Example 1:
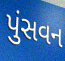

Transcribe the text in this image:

પુંસવન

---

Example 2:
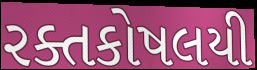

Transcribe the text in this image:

રક્તકોષલયી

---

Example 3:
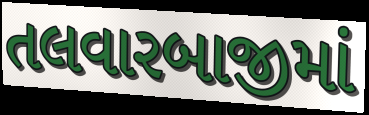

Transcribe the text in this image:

તલવારબાજીમાં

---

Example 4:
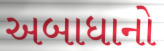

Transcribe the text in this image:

અબાધાનો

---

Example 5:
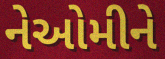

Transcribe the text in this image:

નેઓમીને